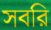
সবরি